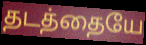
தடத்தையே